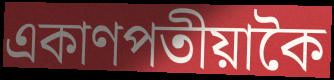
একাণপতীয়াকৈ